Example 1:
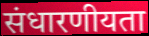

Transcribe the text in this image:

संधारणीयता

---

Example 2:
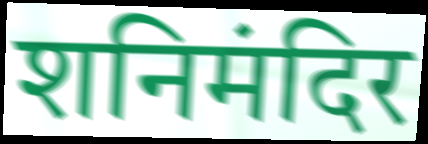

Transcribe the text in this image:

शनिमंदिर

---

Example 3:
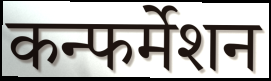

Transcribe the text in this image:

कन्फर्मेशन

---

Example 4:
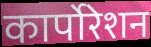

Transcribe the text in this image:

कार्पोरेशन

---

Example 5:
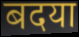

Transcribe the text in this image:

बदया